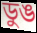
ডুঙ